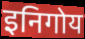
इनिगोय